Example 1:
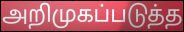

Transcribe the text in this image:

அறிமுகப்படுத்த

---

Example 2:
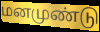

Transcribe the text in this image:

மனமுண்டு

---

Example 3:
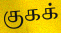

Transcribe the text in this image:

குகக்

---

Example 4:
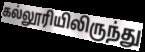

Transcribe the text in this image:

கல்லூரியிலிருந்து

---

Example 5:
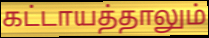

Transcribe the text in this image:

கட்டாயத்தாலும்